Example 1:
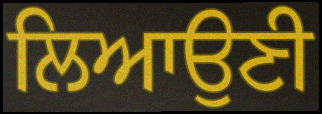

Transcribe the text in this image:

ਲਿਆਉਣੀ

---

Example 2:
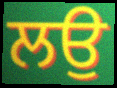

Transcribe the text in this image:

ਲਉ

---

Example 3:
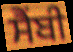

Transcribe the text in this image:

ਸੈਂਬੀ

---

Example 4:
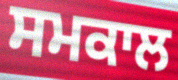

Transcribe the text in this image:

ਸਮਕਾਲ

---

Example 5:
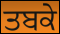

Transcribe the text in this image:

ਤਬਕੇ